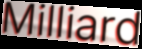
Milliard